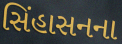
સિંહાસનના